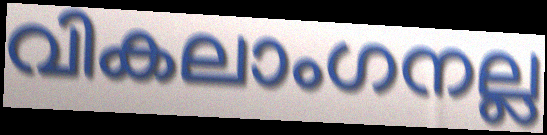
വികലാംഗനല്ല